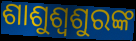
ଶାଶୁଶ୍ୱଶୁରଙ୍କ